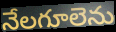
నేలగూలెను